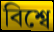
বিশ্বে